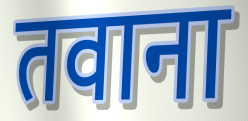
तवाना